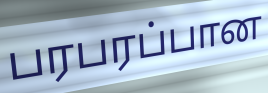
பரபரப்பான